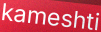
kameshti